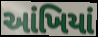
આંખિયાં